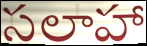
సలాహా